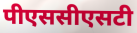
पीएससीएसटी